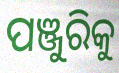
ପଞ୍ଜୁରିକୁ